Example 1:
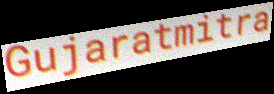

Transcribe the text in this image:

Gujaratmitra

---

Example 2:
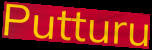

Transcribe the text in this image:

Putturu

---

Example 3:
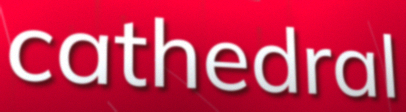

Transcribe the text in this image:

cathedral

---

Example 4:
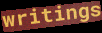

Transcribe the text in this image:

writings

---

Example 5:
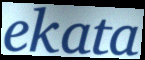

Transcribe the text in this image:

ekata